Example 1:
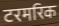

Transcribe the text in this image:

टरमरिक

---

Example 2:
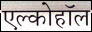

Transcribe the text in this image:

एल्कोहॉल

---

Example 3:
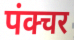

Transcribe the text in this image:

पंक्चर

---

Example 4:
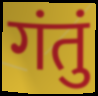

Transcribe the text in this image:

गंतुं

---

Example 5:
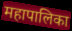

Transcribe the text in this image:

महापालिका